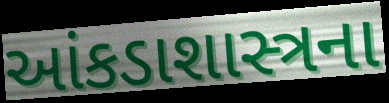
આંકડાશાસ્ત્રના